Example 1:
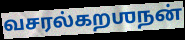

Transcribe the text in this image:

வசரல்கறஶநன்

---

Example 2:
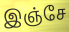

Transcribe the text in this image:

இஞ்சே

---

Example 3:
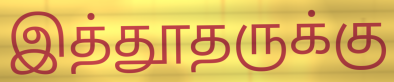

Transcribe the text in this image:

இத்தூதருக்கு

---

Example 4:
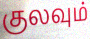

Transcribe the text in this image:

குலவும்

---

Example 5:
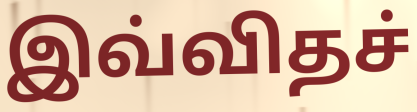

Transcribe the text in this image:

இவ்விதச்